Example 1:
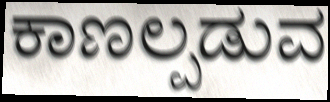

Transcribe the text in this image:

ಕಾಣಲ್ಪಡುವ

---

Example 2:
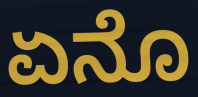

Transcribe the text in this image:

ಏನೊ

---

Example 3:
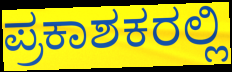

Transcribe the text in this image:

ಪ್ರಕಾಶಕರಲ್ಲಿ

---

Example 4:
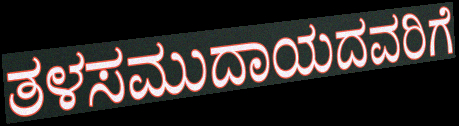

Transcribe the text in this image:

ತಳಸಮುದಾಯದವರಿಗೆ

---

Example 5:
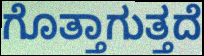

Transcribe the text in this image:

ಗೊತ್ತಾಗುತ್ತದೆ